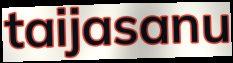
taijasanu